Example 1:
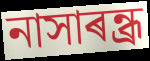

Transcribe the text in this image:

নাসাৰন্ধ্ৰ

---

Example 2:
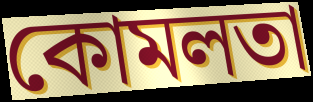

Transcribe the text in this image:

কোমলতা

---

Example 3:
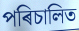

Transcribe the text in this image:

পৰিচালিত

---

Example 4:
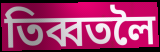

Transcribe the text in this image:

তিব্বতলৈ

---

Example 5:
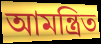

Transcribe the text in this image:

আমন্ত্ৰিত